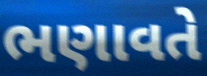
ભણાવતે